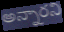
అన్నారని